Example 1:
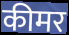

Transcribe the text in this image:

कीमर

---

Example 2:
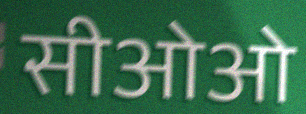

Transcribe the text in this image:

सीओओ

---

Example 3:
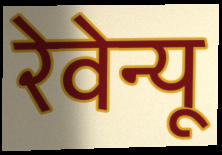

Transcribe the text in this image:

रेवेन्यू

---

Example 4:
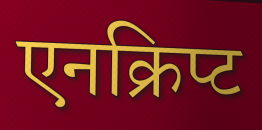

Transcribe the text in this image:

एनक्रिप्ट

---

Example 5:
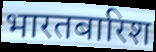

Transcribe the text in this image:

भारतबारिश